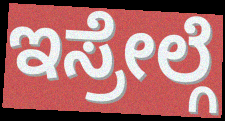
ಇಸ್ರೇಲ್ಗೆ